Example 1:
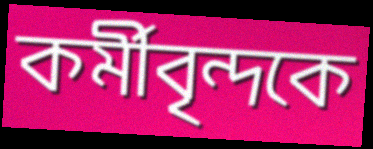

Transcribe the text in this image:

কর্মীবৃন্দকে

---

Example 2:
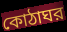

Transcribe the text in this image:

কোঠাঘর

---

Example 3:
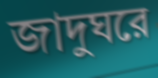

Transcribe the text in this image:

জাদুঘরে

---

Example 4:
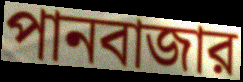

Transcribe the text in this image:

পানবাজার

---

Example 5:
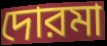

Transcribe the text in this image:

দোরমা